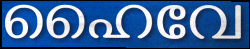
ഹൈവേ